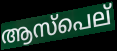
ആസ്പെല്